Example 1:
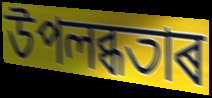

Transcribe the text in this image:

উপলব্ধতাৰ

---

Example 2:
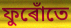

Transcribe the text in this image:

ফুৰোঁতে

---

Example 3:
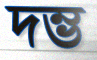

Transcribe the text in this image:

দম্ভ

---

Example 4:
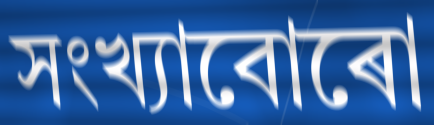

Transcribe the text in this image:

সংখ্যাবোৰো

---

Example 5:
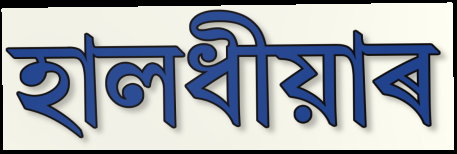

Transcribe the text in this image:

হালধীয়াৰ